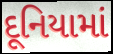
દૂનિયામાં